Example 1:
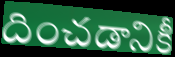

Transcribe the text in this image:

దించడానికీ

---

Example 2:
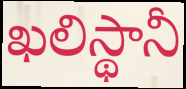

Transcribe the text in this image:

ఖలిస్థానీ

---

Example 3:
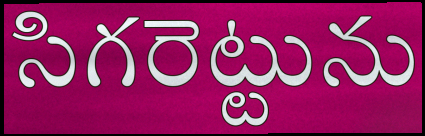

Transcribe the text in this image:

సిగరెట్టును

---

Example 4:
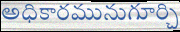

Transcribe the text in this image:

అధికారమునుగూర్చి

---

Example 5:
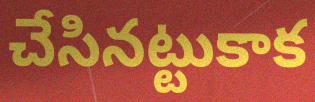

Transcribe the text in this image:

చేసినట్టుకాక